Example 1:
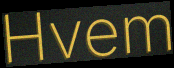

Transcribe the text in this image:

Hvem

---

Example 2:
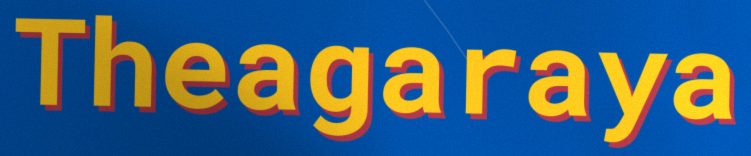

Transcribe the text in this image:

Theagaraya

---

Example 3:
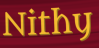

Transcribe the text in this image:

Nithy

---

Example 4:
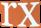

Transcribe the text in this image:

rx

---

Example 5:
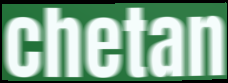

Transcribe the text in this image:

chetan